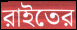
রাইতের